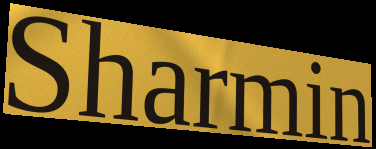
Sharmin